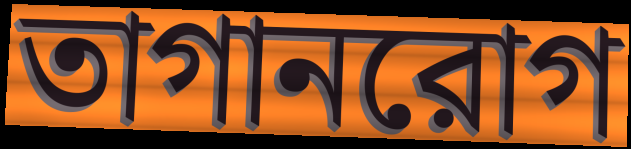
তাগানরোগ